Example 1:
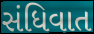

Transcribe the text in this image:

સંધિવાત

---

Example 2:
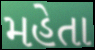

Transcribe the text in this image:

મહેતા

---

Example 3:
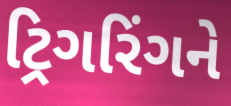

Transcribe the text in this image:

ટ્રિગરિંગને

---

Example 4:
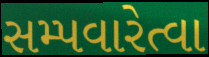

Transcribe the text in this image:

સમ્પવારેત્વા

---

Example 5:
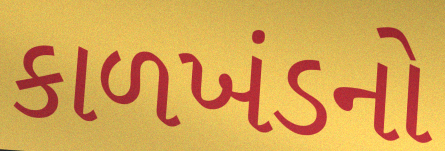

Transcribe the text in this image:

કાળખંડનો